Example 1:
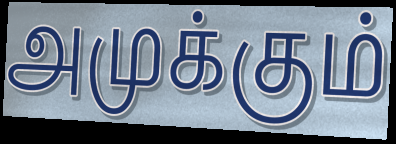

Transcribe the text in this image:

அமுக்கும்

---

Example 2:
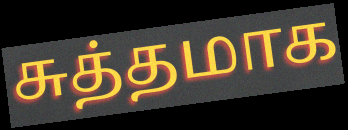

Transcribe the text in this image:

சுத்தமாக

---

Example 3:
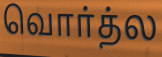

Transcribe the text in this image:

வொர்த்ல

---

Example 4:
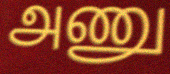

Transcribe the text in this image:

அணு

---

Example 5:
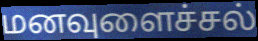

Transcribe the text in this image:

மனவுளைச்சல்